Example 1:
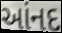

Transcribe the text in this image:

આંનદ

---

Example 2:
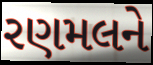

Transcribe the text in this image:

રણમલને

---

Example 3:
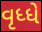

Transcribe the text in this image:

વૃધ્ધે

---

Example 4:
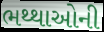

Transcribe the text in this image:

ભથ્થાઓની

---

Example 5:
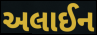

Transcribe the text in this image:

અલાઈન